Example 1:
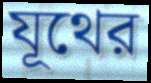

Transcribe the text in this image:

যূথের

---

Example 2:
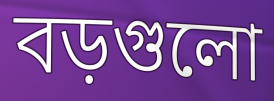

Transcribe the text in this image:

বড়গুলো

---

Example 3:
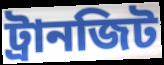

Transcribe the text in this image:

ট্রানজিট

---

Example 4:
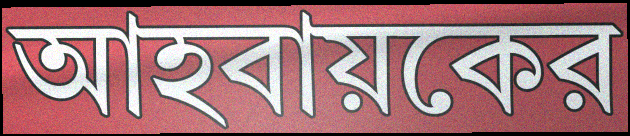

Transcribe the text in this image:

আহবায়কের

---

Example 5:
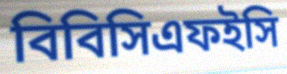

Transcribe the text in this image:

বিবিসিএফইসি